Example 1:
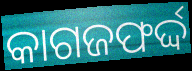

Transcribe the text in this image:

କାଗଜଫର୍ଦ୍ଦ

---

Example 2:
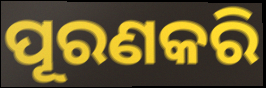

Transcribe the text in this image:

ପୂରଣକରି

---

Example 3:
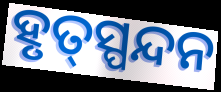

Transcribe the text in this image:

ହୃତ୍‌ସ୍ପନ୍ଦନ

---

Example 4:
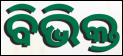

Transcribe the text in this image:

ବିଭିକ୍ତ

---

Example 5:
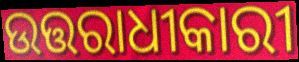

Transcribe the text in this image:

ଉତ୍ତରାଧୀକାରୀ